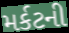
મર્કટની